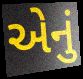
એેનું